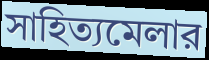
সাহিত্যমেলার